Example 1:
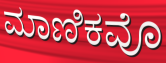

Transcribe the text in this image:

ಮಾಣಿಕವೊ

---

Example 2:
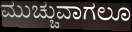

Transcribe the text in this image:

ಮುಚ್ಚುವಾಗಲೂ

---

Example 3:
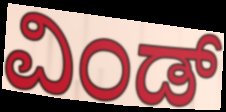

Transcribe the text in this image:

ವಿಂಡ್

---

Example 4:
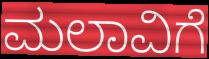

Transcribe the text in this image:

ಮಲಾವಿಗೆ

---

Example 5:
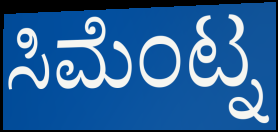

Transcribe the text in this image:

ಸಿಮೆಂಟ್ನ